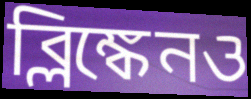
ব্লিঙ্কেনও